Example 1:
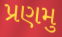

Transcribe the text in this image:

પ્રણમુ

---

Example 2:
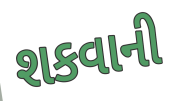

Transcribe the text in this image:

શકવાની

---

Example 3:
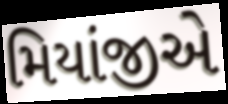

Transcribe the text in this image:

મિયાંજીએ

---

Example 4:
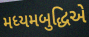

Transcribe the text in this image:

મધ્યમબુદ્ધિએ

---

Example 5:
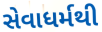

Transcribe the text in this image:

સેવાધર્મથી